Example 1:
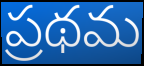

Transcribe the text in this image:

ప్రథమ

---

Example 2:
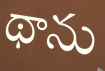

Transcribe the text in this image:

థాను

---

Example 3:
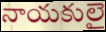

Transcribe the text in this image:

నాయకులై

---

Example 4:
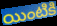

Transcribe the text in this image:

యింటికి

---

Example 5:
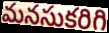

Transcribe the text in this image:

మనసుకరిగి